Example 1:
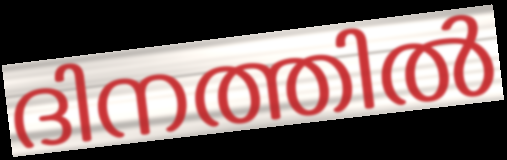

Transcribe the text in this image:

ദിനത്തിൽ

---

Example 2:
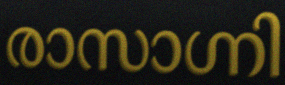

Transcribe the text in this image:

രാസാഗ്നി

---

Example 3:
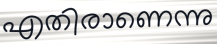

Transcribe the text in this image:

എതിരാണെന്നു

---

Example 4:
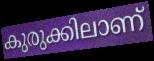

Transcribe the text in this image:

കുരുക്കിലാണ്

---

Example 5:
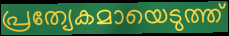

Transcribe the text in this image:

പ്രത്യേകമായെടുത്ത്